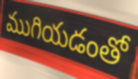
ముగియడంతో